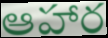
ఆహార